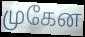
முகேன